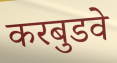
करबुडवे